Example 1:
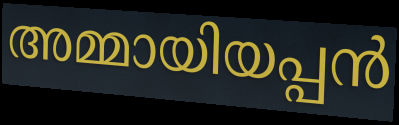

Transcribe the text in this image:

അമ്മായിയപ്പൻ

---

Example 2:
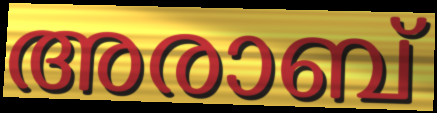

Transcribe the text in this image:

അരാബ്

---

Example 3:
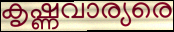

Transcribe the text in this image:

കൃഷ്ണവാര്യരെ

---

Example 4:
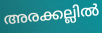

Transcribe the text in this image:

അരക്കല്ലിൽ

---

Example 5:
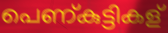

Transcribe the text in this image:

പെണ്കുട്ടികള്